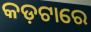
କଡ଼ଟାରେ